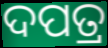
ଦପତ୍ର